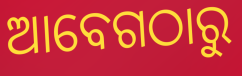
ଆବେଗଠାରୁ